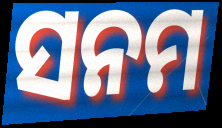
ସନମ